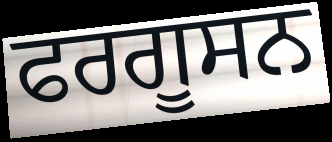
ਫਰਗੂਸਨ